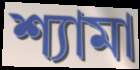
শ্যামা